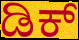
ಡಿಕ್